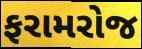
ફરામરોજ